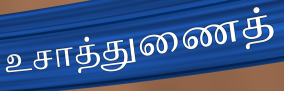
உசாத்துணைத்